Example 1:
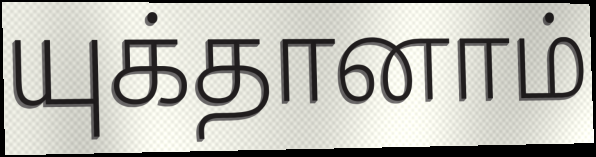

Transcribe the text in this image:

யுக்தானாம்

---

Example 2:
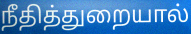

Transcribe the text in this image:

நீதித்துறையால்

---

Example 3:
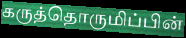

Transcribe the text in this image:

கருத்தொருமிப்பின்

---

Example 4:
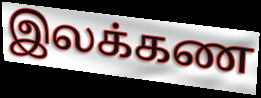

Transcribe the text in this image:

இலக்கண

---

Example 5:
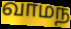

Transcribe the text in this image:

வாமந